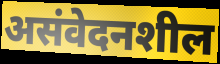
असंवेदनशील